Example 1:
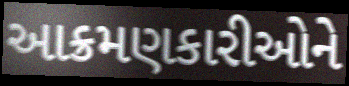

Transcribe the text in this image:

આક્રમણકારીઓને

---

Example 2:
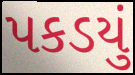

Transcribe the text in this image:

પકડયું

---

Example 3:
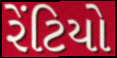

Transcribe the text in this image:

રેંટિયો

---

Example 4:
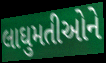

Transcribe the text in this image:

લાઘુમતીઓને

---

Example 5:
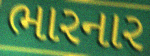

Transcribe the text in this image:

ભારનાર